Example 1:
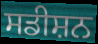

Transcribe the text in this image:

ਸਡੀਸ਼ਨ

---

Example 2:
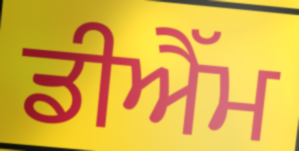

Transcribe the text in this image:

ਡੀਐੱਮ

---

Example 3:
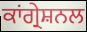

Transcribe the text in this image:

ਕਾਂਗ੍ਰੇਸ਼ਨਲ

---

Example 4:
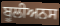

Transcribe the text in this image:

ਬੂਲੀਅਨਸ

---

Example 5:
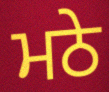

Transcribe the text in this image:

ਮਠੇ